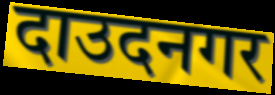
दाउदनगर